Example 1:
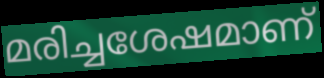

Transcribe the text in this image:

മരിച്ചശേഷമാണ്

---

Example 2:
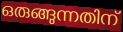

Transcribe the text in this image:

ഒരുങ്ങുന്നതിന്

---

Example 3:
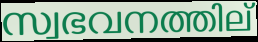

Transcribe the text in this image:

സ്വഭവനത്തില്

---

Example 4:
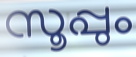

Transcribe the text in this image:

സൂപ്പും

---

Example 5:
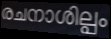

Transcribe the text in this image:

രചനാശില്പം